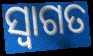
ସ୍ୱାଗତ